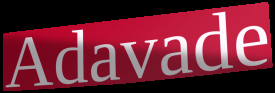
Adavade